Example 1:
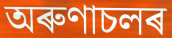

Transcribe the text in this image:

অৰুণাচলৰ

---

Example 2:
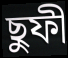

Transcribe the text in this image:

ছুফী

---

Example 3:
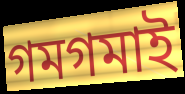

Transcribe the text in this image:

গমগমাই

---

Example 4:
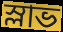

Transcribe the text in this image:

স্লাভ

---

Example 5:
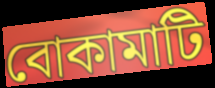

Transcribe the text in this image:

বোকামাটি